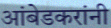
आंबेडकरांनी